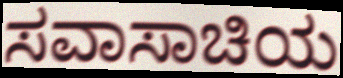
ಸವಾಸಾಚಿಯ